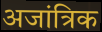
अजांत्रिक